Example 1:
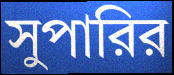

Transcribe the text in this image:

সুপারির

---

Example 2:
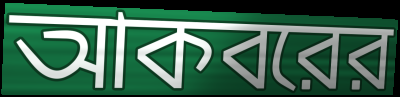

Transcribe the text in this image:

আকবরের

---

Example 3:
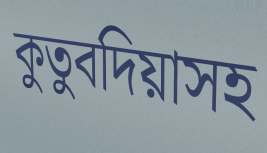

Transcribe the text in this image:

কুতুবদিয়াসহ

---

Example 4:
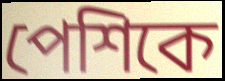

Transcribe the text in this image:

পেশিকে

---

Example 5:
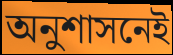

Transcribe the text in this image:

অনুশাসনেই